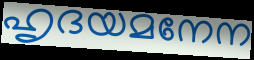
ഹൃദയമനേന